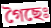
গৈছেঃ